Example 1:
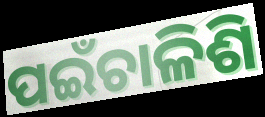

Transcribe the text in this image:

ପଇଁଚାଳିଶି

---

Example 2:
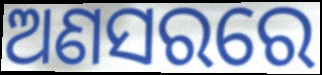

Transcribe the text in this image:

ଅଣସରରେ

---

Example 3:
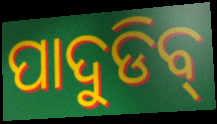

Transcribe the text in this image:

ପାଦୁଡିବ୍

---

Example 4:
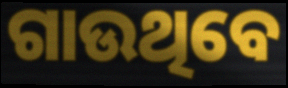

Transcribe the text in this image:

ଗାଉଥିବେ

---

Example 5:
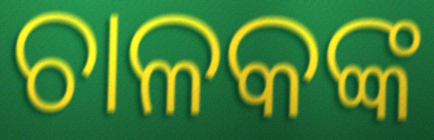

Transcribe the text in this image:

ଚାଳକଙ୍କ